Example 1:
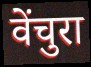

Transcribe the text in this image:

वेंचुरा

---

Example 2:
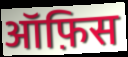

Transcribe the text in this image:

ऑफ़िस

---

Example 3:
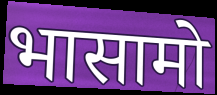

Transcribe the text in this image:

भासामो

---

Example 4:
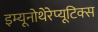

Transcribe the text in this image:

इम्यूनोथेरेप्यूटिक्स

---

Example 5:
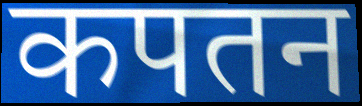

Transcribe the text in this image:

कपतन